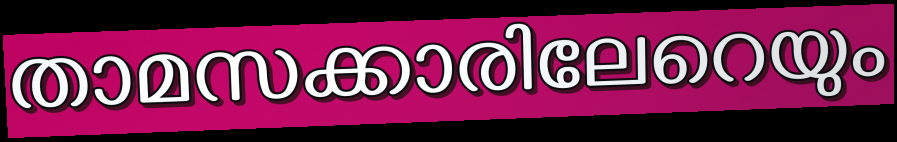
താമസക്കാരിലേറെയും